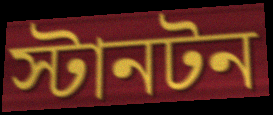
স্টানটন